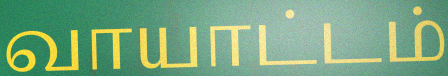
வாயாட்டம்